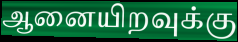
ஆனையிறவுக்கு